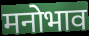
मनोभाव